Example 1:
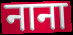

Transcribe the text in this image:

नाना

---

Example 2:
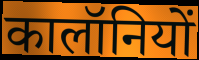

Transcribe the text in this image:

कालॉनियों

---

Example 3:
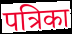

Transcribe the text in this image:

पत्रिका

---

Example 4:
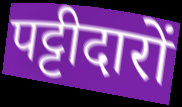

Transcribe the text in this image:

पट्टीदारों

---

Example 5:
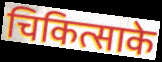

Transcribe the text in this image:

चिकित्साके